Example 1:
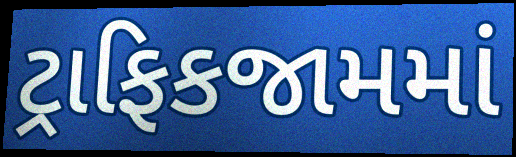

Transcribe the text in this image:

ટ્રાફિકજામમાં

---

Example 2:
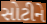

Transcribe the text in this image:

સોટીને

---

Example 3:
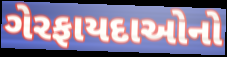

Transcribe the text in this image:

ગેરફાયદાઓનો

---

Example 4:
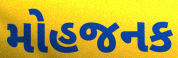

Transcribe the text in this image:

મોહજનક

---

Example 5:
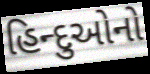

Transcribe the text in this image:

હિન્દુઓનો